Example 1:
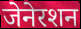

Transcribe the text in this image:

जेनेरशन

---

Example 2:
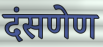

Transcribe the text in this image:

दंसणेण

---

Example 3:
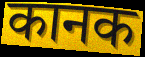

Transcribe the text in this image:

कानक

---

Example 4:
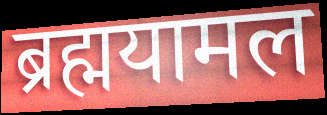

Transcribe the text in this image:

ब्रह्मयामल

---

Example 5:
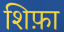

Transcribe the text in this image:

शिफ़ा